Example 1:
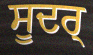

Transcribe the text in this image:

ਸੂਦਰ੍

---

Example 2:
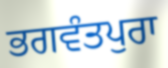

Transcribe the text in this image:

ਭਗਵੰਤਪੁਰਾ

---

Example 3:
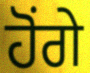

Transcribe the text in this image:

ਹੋਂਗੇ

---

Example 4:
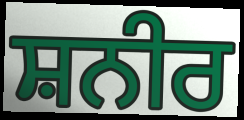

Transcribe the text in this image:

ਸ਼ਨੀਰ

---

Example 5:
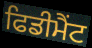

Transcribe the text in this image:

ਫਿਡੀਮੈਂਟ